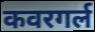
कवरगर्ल